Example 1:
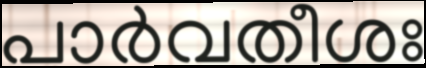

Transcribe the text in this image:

പാർവതീശഃ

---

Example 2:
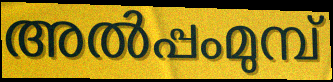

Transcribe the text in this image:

അൽപ്പംമുമ്പ്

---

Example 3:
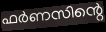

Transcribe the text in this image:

ഫർണസിന്റെ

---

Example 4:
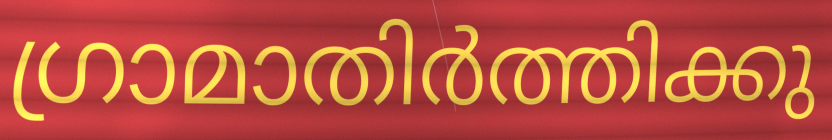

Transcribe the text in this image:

ഗ്രാമാതിർത്തിക്കു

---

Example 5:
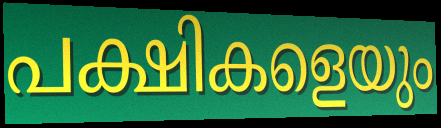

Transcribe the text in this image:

പക്ഷികളെയും